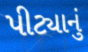
પીટ્યાનું